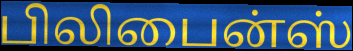
பிலிபைன்ஸ்